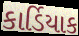
કાર્ડિયાક